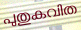
പുതുകവിത